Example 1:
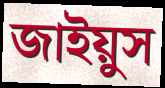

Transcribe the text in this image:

জাইয়ুস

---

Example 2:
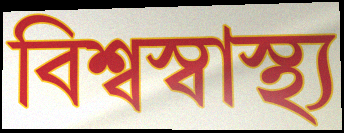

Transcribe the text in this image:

বিশ্বস্বাস্থ্য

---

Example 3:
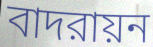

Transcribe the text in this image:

বাদরায়ন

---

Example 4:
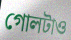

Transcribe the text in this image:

গোলটাও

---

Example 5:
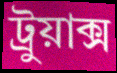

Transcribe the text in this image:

ট্রুয়াক্স